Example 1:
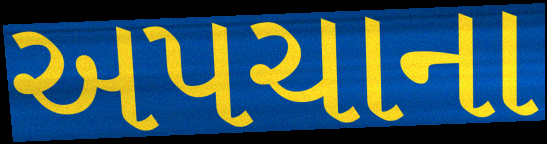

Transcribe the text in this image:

અપચાના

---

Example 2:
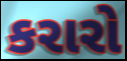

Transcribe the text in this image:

કરારો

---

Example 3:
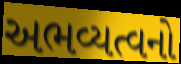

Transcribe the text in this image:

અભવ્યત્વનો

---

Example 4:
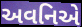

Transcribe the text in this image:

અવનિએ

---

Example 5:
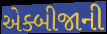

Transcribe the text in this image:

એક્બીજાની